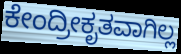
ಕೇಂದ್ರೀಕೃತವಾಗಿಲ್ಲ